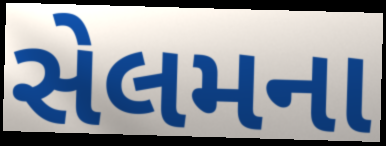
સેલમના